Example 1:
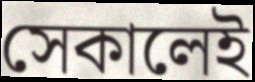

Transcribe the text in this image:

সেকালেই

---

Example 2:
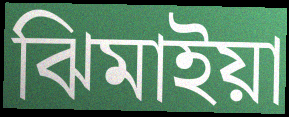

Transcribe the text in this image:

ঝিমাইয়া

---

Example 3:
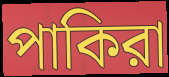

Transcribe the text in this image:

পাকিরা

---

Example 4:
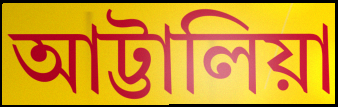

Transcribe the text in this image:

আট্টালিয়া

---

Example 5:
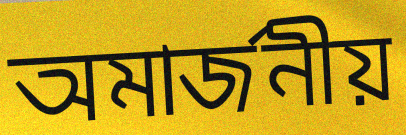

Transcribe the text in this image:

অমার্জনীয়